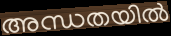
അന്ധതയിൽ